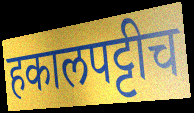
हकालपट्टीच